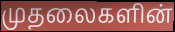
முதலைகளின்